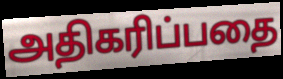
அதிகரிப்பதை